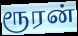
ரூரன்